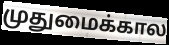
முதுமைக்கால